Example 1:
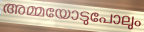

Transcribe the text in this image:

അമ്മയോടുപോലും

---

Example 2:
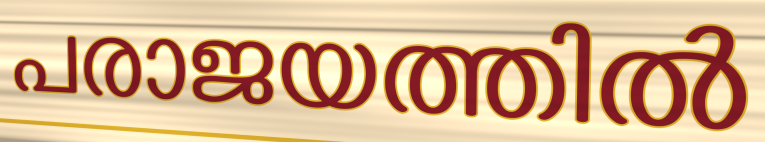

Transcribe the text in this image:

പരാജയത്തിൽ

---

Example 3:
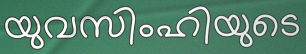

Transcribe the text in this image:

യുവസിംഹിയുടെ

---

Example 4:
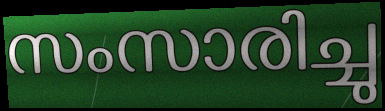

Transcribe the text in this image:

സംസാരിച്ചു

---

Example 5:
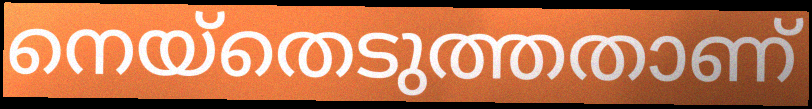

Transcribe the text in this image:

നെയ്തെടുത്തതാണ്